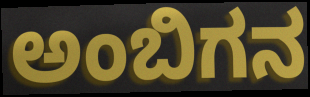
ಅಂಬಿಗನ